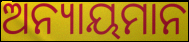
ଅନ୍ୟାୟମାନ